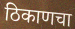
ठिकाणचा